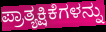
ಪ್ರಾತ್ಯಕ್ಷಿಕೆಗಳನ್ನು